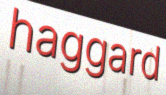
haggard